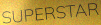
SUPERSTAR